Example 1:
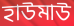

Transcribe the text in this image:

হাউমাউ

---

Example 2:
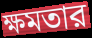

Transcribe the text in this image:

ক্ষমতার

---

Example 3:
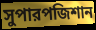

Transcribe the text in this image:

সুপারপজিশান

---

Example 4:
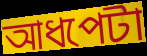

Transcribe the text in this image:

আধপেটা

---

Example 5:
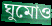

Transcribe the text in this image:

ঘুমোও